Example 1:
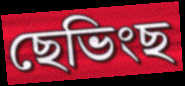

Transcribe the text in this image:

ছেভিংছ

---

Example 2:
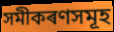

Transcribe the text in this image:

সমীকৰণসমূহ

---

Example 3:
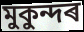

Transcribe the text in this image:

মুকুন্দৰ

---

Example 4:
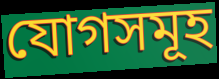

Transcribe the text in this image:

যোগসমূহ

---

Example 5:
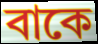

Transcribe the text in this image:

বাকে